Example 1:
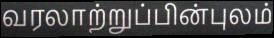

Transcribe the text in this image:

வரலாற்றுப்பின்புலம்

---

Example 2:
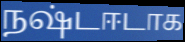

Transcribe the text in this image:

நஷ்டஈடாக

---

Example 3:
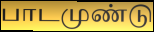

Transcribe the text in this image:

பாடமுண்டு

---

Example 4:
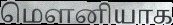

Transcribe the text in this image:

மெளனியாக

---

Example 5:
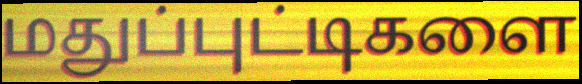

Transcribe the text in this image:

மதுப்புட்டிகளை